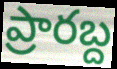
ప్రారబ్ద